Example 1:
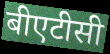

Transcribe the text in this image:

बीएटीसी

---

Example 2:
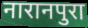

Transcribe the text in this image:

नारानपुरा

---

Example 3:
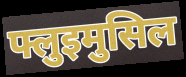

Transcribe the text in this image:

फ्लुइमुसिल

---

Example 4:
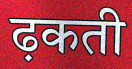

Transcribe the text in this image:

ढ़कती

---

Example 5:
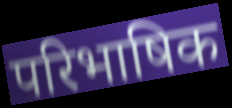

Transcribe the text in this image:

परिभाषिक